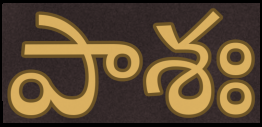
పాశః